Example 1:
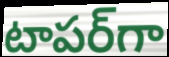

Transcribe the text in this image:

టాపర్‌గా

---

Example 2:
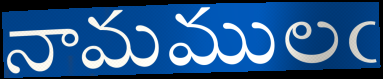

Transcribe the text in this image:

నామములఁ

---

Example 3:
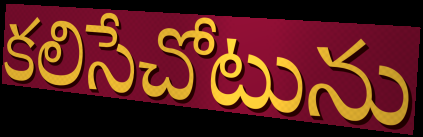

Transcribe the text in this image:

కలిసేచోటును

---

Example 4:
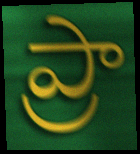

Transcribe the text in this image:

ప్రా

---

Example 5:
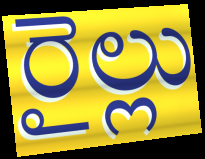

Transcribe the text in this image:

రైల్లు